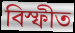
বিস্ফীত